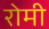
रोमी